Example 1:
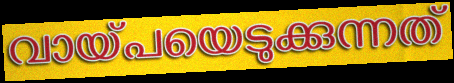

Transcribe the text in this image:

വായ്പയെടുക്കുന്നത്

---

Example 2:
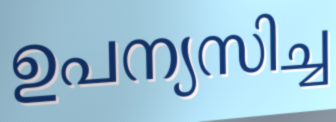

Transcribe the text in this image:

ഉപന്യസിച്ച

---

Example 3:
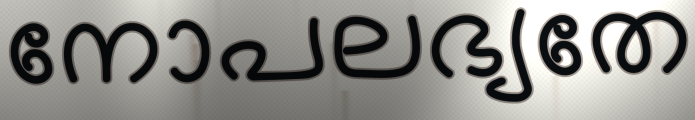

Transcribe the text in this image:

നോപലഭ്യതേ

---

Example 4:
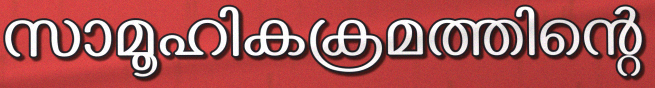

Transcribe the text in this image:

സാമൂഹികക്രമത്തിന്റെ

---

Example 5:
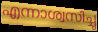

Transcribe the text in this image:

എന്നാശ്വസിച്ചു